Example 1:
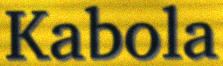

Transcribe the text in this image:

Kabola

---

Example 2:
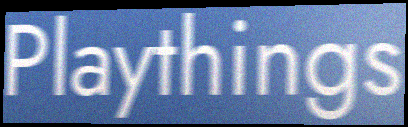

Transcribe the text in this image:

Playthings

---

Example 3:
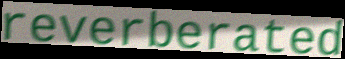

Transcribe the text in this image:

reverberated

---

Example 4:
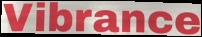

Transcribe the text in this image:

Vibrance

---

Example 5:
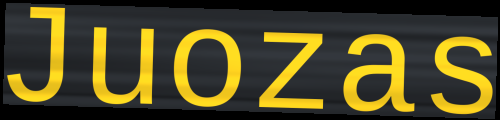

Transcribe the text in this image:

Juozas